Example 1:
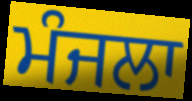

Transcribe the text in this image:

ਮੰਜਲਾ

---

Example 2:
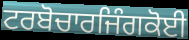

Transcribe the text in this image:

ਟਰਬੋਚਾਰਜਿੰਗਕੋਈ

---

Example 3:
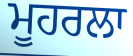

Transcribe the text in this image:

ਮੂਹਰਲਾ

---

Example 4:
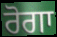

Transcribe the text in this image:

ਰੋਗਾ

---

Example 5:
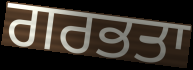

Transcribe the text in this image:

ਗਰਭਤਾ